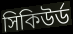
সিকিউর্ড